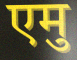
एमु